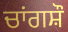
ਚਾਂਗਸ਼ੌ